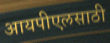
आयपीएलसाठी